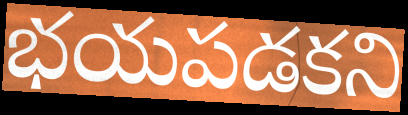
భయపడకని